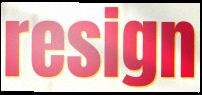
resign